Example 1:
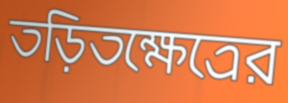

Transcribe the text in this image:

তড়িতক্ষেত্রের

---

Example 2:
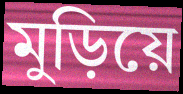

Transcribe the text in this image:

মুড়িয়ে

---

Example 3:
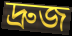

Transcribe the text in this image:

দ্রুজ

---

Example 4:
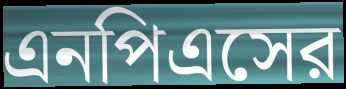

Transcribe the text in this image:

এনপিএসের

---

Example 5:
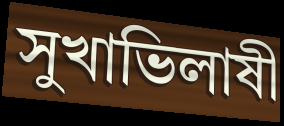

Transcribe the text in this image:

সুখাভিলাষী